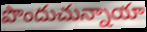
పొందుచున్నాయా